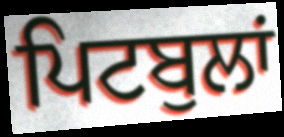
ਪਿਟਬੁਲਾਂ